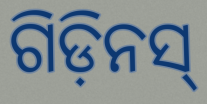
ଗିଡ଼ିନସ୍